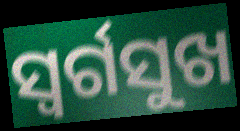
ସ୍ୱର୍ଗସୁଖ